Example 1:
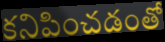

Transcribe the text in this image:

కనిపించడంతో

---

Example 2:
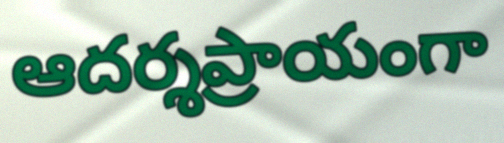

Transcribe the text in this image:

ఆదర్శప్రాయంగా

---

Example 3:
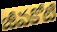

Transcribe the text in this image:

జీవకోటి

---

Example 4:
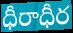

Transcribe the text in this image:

ధీరాధీర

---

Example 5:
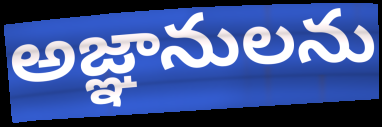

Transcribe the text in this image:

అజ్ఞానులను